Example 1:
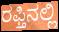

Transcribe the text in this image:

ರಫ್ತಿನಲ್ಲಿ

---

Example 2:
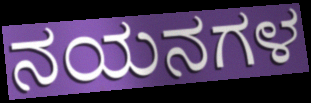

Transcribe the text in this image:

ನಯನಗಳ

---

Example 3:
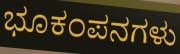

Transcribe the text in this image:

ಭೂಕಂಪನಗಳು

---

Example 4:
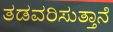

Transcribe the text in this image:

ತಡವರಿಸುತ್ತಾನೆ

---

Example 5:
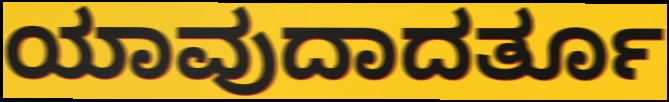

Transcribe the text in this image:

ಯಾವುದಾದರ್ತೂ